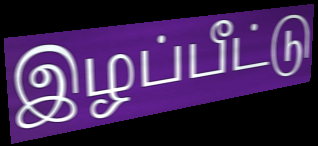
இழப்பீட்டு